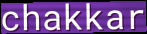
chakkar